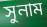
সুনাম